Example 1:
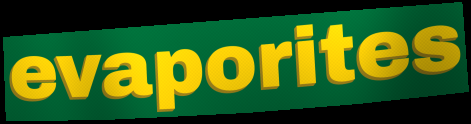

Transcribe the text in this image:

evaporites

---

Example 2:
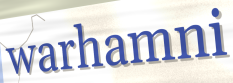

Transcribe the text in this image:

warhamni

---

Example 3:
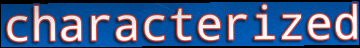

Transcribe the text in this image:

characterized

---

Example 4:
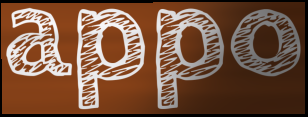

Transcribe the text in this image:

appo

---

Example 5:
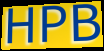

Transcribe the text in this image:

HPB